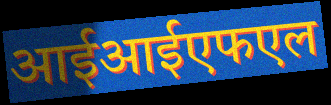
आईआईएफएल